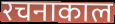
रचनाकाल